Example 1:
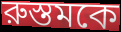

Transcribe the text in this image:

রুস্তমকে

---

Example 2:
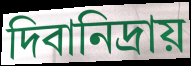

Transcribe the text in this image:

দিবানিদ্রায়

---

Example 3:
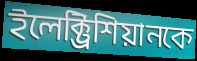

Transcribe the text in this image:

ইলেক্ট্রিশিয়ানকে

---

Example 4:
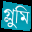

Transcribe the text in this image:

গ্লুমি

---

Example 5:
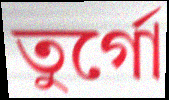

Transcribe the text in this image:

তুর্গো